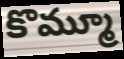
కొమ్మూ